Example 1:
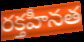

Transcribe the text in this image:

రక్తహీనత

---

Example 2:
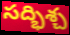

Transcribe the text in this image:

సద్భిశ్చ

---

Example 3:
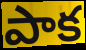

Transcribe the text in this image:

పాక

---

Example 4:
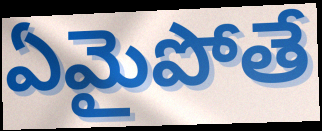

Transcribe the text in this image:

ఏమైపోతే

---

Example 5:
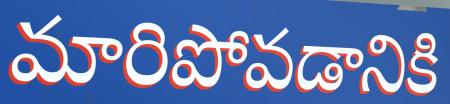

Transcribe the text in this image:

మారిపోవడానికి